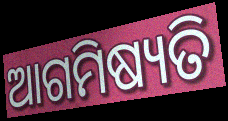
ଆଗମିଷ୍ୟତି